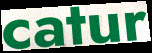
catur